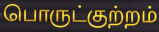
பொருட்குற்றம்